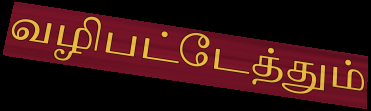
வழிபட்டேத்தும்